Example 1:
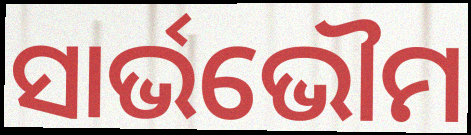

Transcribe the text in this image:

ସାର୍ଭଭୌମ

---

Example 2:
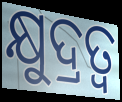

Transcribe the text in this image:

କ୍ଷୁଦ୍ରତ୍ୱ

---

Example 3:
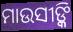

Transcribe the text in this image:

ମାଉସୀଙ୍କି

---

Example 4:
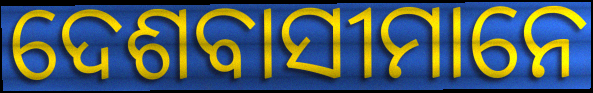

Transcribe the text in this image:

ଦେଶବାସୀମାନେ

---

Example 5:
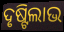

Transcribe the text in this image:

ଦୃଷ୍ଟିଲାଭ